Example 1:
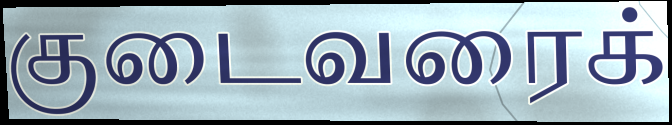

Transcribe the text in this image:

குடைவரைக்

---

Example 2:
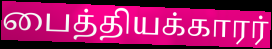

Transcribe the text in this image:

பைத்தியக்காரர்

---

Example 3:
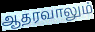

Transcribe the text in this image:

ஆதரவாலும்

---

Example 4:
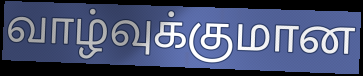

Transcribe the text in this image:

வாழ்வுக்குமான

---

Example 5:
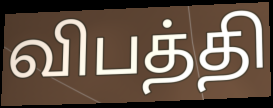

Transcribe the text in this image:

விபத்தி